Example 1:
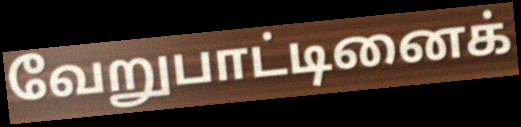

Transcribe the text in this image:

வேறுபாட்டினைக்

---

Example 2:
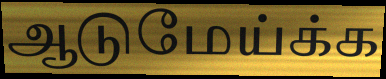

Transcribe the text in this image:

ஆடுமேய்க்க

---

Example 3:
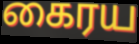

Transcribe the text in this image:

கைரய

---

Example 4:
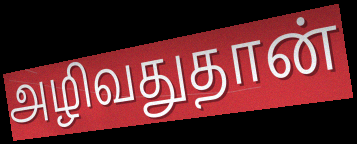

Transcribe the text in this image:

அழிவதுதான்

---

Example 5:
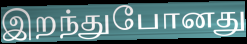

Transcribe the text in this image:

இறந்துபோனது